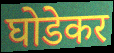
घोडेकर